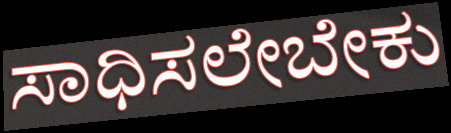
ಸಾಧಿಸಲೇಬೇಕು